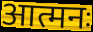
आत्मनः